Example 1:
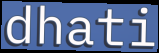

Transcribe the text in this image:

dhati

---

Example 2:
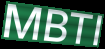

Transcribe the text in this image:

MBTI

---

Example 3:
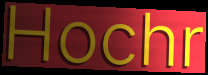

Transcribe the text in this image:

Hochr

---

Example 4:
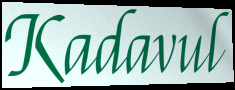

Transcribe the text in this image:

Kadavul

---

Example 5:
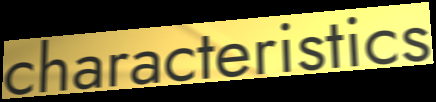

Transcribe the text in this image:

characteristics